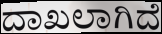
ದಾಖಲಾಗಿದೆ